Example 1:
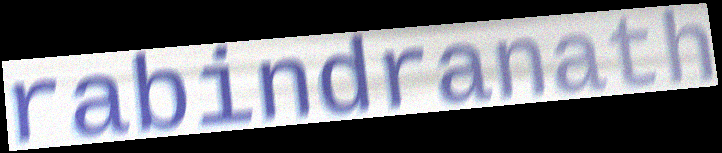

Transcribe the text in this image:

rabindranath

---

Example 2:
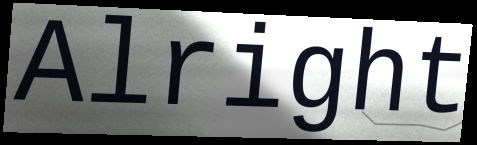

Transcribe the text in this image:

Alright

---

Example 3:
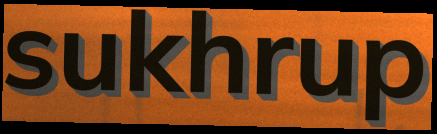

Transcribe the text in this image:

sukhrup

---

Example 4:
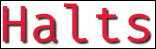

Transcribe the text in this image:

Halts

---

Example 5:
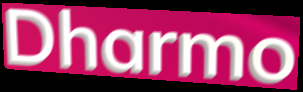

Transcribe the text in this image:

Dharmo